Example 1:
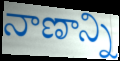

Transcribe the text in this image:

నాణాన్ని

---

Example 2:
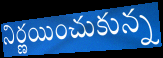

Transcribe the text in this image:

నిర్ణయించుకున్న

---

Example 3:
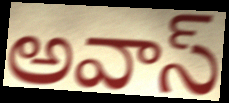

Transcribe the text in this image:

అవాస్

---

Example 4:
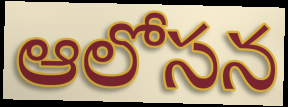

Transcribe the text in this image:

ఆలోసన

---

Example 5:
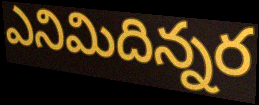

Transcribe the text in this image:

ఎనిమిదిన్నర